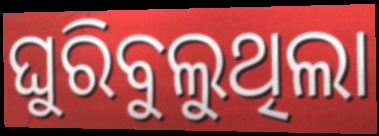
ଘୁରିବୁଲୁଥିଲା